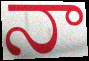
నా